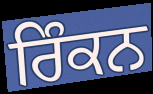
ਰਿੰਕਨ